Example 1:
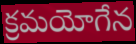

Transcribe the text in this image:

క్రమయోగేన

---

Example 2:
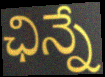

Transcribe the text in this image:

ఛిన్నే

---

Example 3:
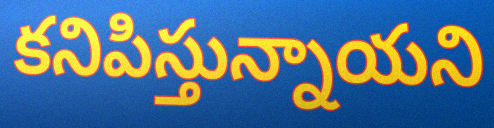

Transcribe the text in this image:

కనిపిస్తున్నాయని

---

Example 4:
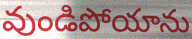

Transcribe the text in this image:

వుండిపోయాను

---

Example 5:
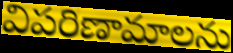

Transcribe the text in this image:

విపరిణామాలను